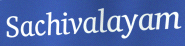
Sachivalayam